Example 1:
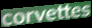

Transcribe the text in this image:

corvettes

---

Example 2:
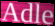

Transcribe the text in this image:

Adle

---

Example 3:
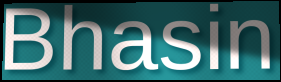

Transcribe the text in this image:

Bhasin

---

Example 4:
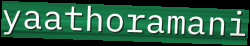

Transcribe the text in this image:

yaathoramani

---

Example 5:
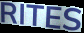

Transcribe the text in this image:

RITES